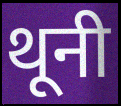
थूनी